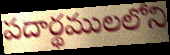
పదార్థములలోని